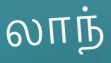
லாந்